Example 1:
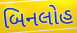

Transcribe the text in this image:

બિનલોહ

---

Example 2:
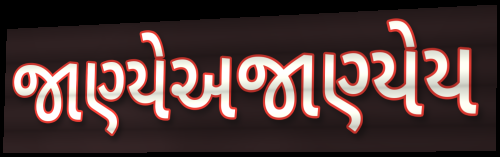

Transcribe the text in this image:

જાણ્યેઅજાણ્યેય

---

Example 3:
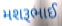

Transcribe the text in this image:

મશરૂભાઈ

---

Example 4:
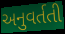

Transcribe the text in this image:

અનુવર્તતી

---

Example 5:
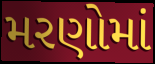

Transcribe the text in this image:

મરણોમાં